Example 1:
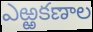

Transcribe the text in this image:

ఎఱ్ఱకణాల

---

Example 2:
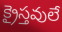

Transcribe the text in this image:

క్రైస్తవులే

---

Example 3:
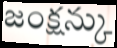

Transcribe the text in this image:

జంక్షన్కు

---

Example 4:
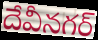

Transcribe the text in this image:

దేవీనగర్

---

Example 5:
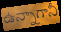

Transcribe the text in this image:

ఉన్నాగానీ